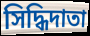
সিদ্ধিদাতা